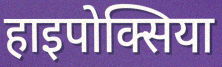
हाइपोक्सिया